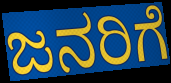
ಜನರಿಗೆ